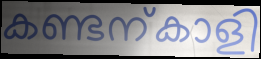
കണ്ടന്കാളി